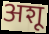
अश्रू